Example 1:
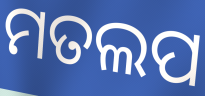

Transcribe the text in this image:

ମତଲପ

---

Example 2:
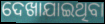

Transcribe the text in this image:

ଦେଖାଯାଇଥିବା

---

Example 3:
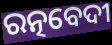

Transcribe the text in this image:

ରତ୍ନବେଦୀ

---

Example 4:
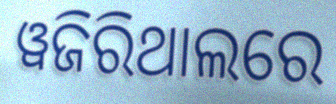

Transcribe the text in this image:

ୱଜିରିଥାଲରେ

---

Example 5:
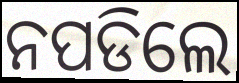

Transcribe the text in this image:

ନପଡିଲେ